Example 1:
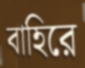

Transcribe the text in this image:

বাহিরে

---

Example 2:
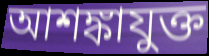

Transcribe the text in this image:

আশঙ্কাযুক্ত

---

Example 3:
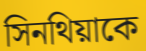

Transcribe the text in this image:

সিনথিয়াকে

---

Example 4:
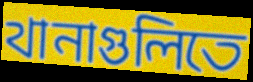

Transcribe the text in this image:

থানাগুলিতে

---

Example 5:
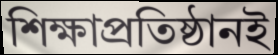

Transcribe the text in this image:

শিক্ষাপ্রতিষ্ঠানই